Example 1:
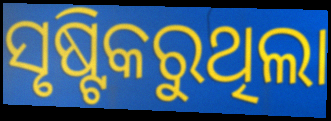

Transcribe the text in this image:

ସୃଷ୍ଟିକରୁଥିଲା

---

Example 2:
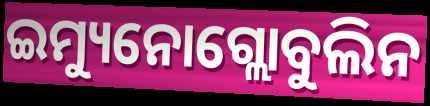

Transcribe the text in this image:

ଇମ୍ୟୁନୋଗ୍ଲୋବୁଲିନ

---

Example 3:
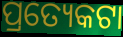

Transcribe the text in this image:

ପ୍ରତ୍ୟେକଟା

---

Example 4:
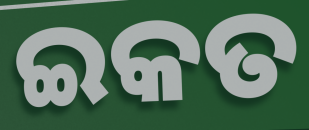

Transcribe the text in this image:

ଇକତ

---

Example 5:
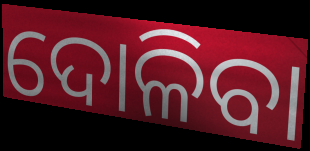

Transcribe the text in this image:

ଦୋଳିବା